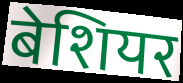
बेशियर